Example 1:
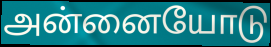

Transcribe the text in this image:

அன்னையோடு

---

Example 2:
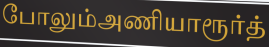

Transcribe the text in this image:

போலும்அணியாரூர்த்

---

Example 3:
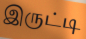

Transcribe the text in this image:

இருட்டி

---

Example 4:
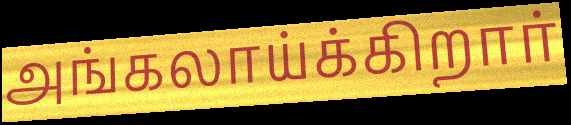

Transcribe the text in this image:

அங்கலாய்க்கிறார்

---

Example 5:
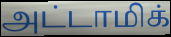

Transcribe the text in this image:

அட்டாமிக்